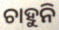
ଚାହୁନି